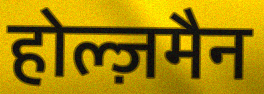
होल्ज़मैन